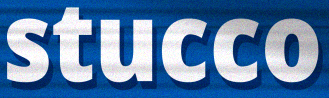
stucco